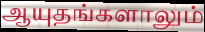
ஆயுதங்களாலும்